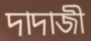
দাদাজী